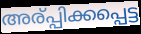
അര്പ്പിക്കപ്പെട്ട